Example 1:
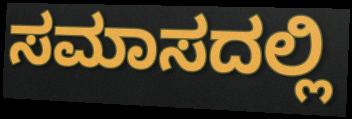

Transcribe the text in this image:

ಸಮಾಸದಲ್ಲಿ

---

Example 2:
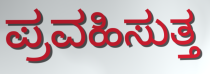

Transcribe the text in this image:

ಪ್ರವಹಿಸುತ್ತ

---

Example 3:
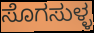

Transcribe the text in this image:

ಸೊಗಸುಳ್ಳ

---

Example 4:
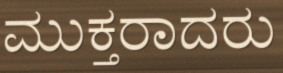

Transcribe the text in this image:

ಮುಕ್ತರಾದರು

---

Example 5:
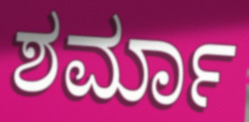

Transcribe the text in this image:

ಶರ್ಮಾ